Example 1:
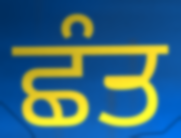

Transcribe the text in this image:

ਛੰਤ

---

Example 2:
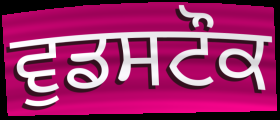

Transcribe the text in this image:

ਵੁਡਸਟੌਕ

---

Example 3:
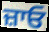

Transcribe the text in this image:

ਜ਼ਾਓ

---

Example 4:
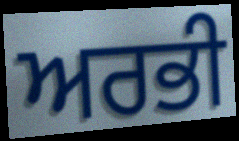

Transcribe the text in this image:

ਅਰਭੀ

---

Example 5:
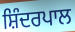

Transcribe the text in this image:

ਸ਼ਿੰਦਰਪਾਲ